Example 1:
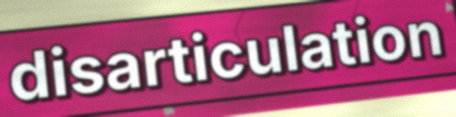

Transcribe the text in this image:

disarticulation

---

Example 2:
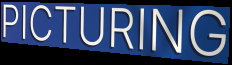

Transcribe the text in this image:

PICTURING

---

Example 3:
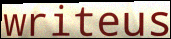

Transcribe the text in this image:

writeus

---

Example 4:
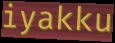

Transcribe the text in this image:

iyakku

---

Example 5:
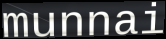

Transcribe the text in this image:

munnai